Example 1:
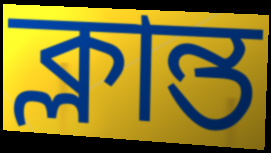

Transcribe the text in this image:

ক্লান্ত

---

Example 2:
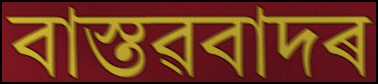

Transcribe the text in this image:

বাস্তৱবাদৰ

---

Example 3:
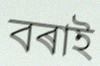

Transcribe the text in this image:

বৰাই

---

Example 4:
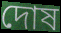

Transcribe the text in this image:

দোষ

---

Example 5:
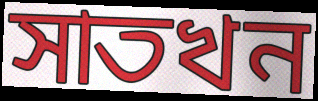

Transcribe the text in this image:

সাতখন